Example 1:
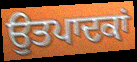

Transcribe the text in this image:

ਉਤਪਾਦਕਾਂ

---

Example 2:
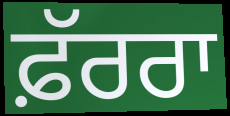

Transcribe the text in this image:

ਫ਼ੱਰਰਾ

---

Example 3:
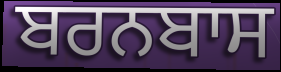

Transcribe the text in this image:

ਬਰਨਬਾਸ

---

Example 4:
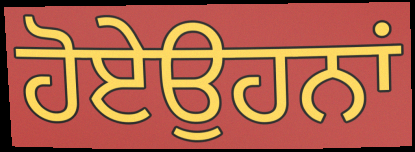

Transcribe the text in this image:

ਹੋਏਉਹਨਾਂ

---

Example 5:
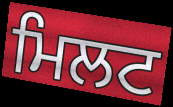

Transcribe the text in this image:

ਮਿਲਟ